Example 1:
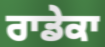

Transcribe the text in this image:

ਰਾਡੇਕਾ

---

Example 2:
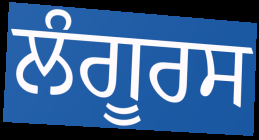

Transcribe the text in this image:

ਲੰਗੂਰਸ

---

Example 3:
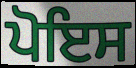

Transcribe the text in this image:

ਪੋਇਸ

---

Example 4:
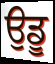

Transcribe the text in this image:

ਉਡੂ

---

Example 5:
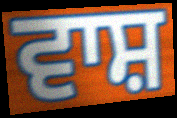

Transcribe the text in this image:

ਵਾਸ਼